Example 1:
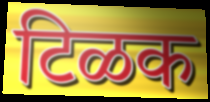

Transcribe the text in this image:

टिळक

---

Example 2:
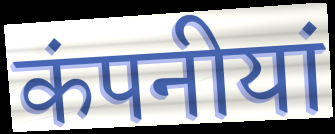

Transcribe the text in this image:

कंपनीयां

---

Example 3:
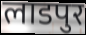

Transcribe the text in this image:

लाडपुर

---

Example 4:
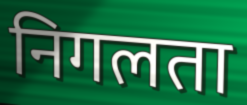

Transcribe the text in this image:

निगलता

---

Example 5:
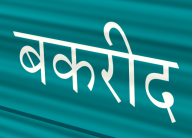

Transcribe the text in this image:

बकरीद